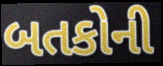
બતકોની